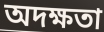
অদক্ষতা